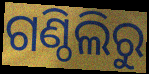
ଗଣ୍ଠିଲିରୁ